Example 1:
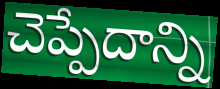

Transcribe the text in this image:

చెప్పేదాన్ని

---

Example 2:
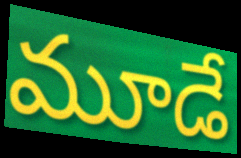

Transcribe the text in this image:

మూడే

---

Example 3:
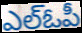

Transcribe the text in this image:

ఎల్ఓపీ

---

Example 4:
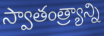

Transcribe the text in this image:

స్వాతంత్ర్యాన్ని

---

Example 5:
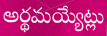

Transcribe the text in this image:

అర్థమయ్యేట్లు